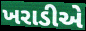
ખરાડીએ